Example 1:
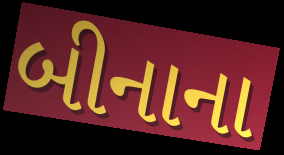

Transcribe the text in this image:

બીનાના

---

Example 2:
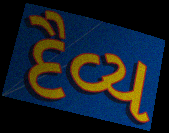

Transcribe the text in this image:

દૈવ્ય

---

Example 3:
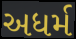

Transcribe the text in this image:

અધર્મ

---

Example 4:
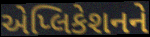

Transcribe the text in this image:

એપ્લિકેશનને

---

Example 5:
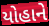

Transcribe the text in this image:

યોહાને